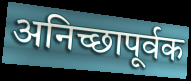
अनिच्छापूर्वक